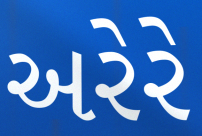
અરેરે